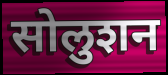
सोलुशन